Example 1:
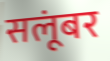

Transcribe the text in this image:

सलूंबर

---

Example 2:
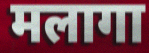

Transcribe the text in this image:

मलागा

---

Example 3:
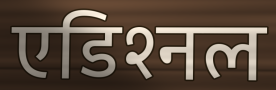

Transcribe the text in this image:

एडिश्नल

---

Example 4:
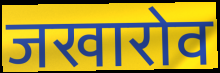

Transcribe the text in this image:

जखारोव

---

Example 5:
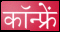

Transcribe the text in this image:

कॉन्फ्रें